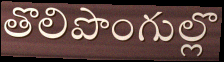
తొలిపొంగుల్లొ